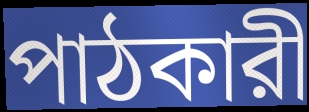
পাঠকারী